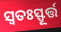
ସ୍ୱତଃସ୍ଫୂର୍ତ୍ତ